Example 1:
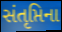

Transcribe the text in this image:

સંતૃપ્તિના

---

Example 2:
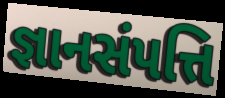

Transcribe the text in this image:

જ્ઞાનસંપત્તિ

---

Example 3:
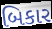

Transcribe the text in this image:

બિકાર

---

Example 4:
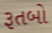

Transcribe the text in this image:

રૂતબો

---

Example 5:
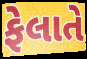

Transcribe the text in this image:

ફેલાતે